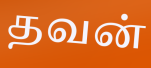
தவன்